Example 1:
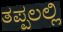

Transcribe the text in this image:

ತಪ್ಪಲಲ್ಲಿ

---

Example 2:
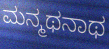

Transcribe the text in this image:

ಮನ್ಮಥನಾಥ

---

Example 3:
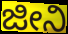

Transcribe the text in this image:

ಜೀನಿ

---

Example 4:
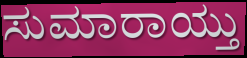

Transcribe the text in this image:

ಸುಮಾರಾಯ್ತು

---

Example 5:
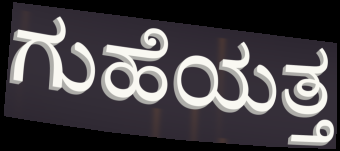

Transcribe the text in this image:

ಗುಹೆಯತ್ತ